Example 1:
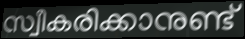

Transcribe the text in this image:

സ്വീകരിക്കാനുണ്ട്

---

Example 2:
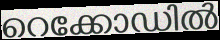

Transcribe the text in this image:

റെക്കോഡിൽ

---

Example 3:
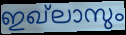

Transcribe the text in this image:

ഇഖ്‌ലാസും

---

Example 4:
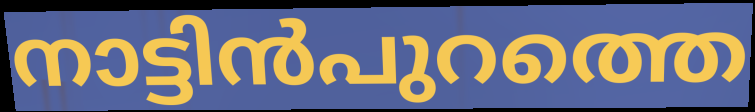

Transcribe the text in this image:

നാട്ടിൻപുറത്തെ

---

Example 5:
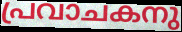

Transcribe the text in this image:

പ്രവാചകനു